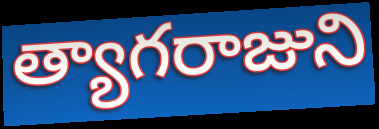
త్యాగరాజుని